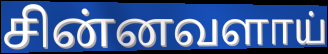
சின்னவளாய்